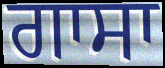
ਗਾਸਾ